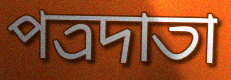
পত্রদাতা